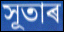
সূতাৰ